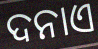
ଦନାଏ